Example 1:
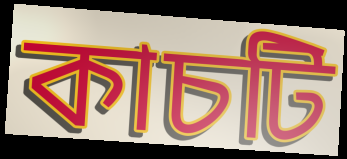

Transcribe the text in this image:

কাচটি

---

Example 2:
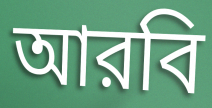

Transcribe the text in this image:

আরবি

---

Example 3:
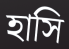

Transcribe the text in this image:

হাসি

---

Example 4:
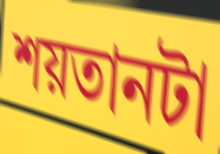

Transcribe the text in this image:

শয়তানটা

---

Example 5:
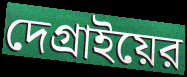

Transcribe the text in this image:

দেগ্রাইয়ের